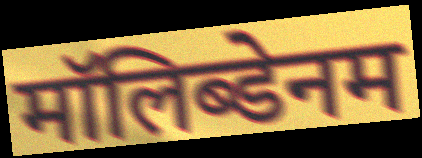
मॉलिब्डेनम